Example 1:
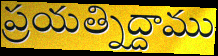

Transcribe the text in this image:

ప్రయత్నిద్దాము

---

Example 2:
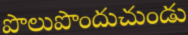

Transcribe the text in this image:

పొలుపొందుచుండు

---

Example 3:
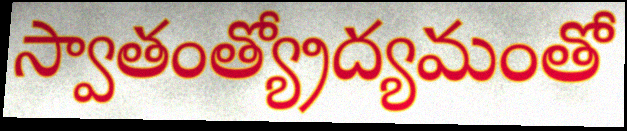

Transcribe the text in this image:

స్వాతంత్య్రోద్యమంతో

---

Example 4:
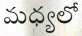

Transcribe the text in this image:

మధ్యలో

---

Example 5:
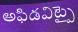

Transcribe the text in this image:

అఫిడవిట్పై